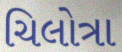
ચિલોત્રા